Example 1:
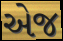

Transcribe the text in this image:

એજ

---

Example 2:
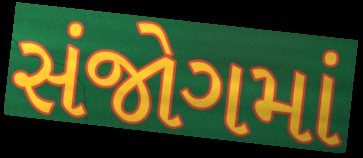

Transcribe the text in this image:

સંજોગમાં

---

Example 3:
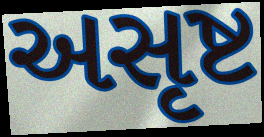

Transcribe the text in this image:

અસૃષ્ટ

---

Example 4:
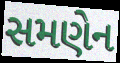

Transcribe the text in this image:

સમણેન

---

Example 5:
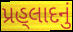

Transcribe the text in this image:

પ્રહ્‌લાદનું